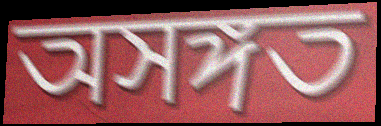
অসঙ্গত